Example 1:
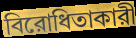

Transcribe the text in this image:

বিরোধিতাকারী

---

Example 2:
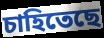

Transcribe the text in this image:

চাহিতেছে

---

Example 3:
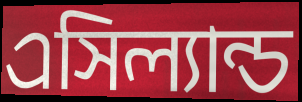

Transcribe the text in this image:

এসিল্যান্ড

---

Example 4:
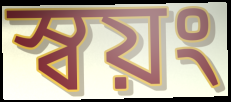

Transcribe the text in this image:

স্বয়ং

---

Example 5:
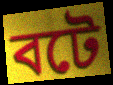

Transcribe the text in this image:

বটে